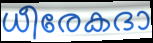
ധീരേകദാ